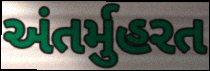
અંતર્મુહરત